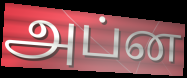
அப்ன